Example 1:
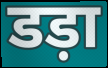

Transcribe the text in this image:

डड़ा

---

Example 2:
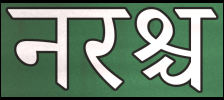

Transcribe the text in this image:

नरश्च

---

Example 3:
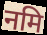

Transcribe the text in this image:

नमि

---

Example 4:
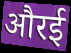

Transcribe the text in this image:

औरई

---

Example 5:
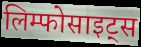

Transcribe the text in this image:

लिम्फोसाइट्स